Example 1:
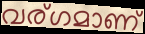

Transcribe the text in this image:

വര്ഗമാണ്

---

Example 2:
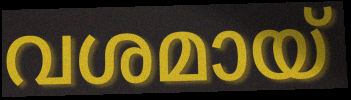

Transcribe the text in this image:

വശമായ്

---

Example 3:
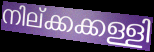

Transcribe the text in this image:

നില്ക്കക്കള്ളി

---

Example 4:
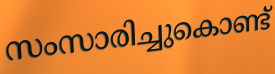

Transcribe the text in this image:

സംസാരിച്ചുകൊണ്ട്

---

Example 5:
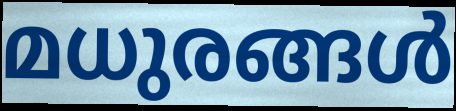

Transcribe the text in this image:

മധുരങ്ങൾ